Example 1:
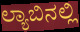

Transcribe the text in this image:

ಲ್ಯಾಬಿನಲ್ಲಿ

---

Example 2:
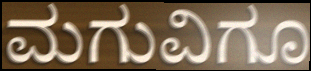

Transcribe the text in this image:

ಮಗುವಿಗೂ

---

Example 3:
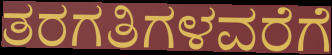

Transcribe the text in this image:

ತರಗತಿಗಳವರೆಗೆ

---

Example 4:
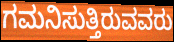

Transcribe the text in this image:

ಗಮನಿಸುತ್ತಿರುವವರು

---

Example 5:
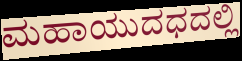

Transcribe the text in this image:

ಮಹಾಯುದಧದಲ್ಲಿ